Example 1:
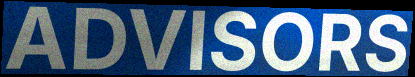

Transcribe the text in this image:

ADVISORS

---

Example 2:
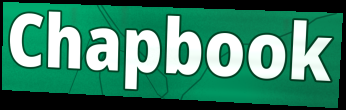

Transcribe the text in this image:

Chapbook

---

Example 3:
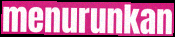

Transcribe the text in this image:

menurunkan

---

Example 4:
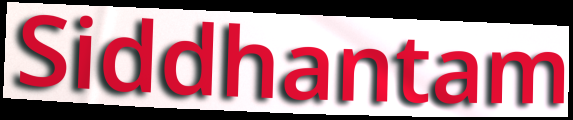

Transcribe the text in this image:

Siddhantam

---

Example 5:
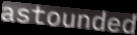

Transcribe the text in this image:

astounded